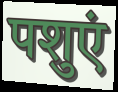
पशुएं